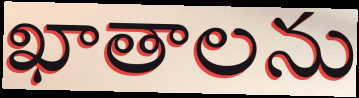
ఖాతాలను